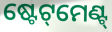
ଷ୍ଟେଟ୍‌ମେଣ୍ଟ୍